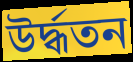
উর্দ্ধতন